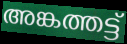
അങ്കത്തട്ട്